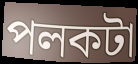
পলকটা